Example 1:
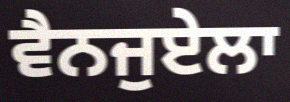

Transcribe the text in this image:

ਵੈਨਜੁਏਲਾ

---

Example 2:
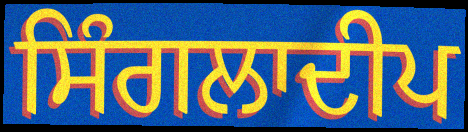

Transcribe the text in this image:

ਸਿੰਗਲਾਦੀਪ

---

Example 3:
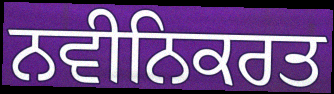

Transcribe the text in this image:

ਨਵੀਨਿਕਰਤ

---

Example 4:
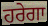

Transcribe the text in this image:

ਹਰੇਗਾ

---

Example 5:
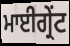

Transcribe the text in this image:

ਮਾਈਗ੍ਰੇਂਟ